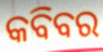
କବିବର